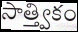
సాత్త్వికం